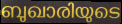
ബുഖാരിയുടെ